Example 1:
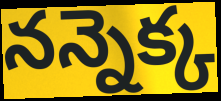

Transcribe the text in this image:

నన్నెక్క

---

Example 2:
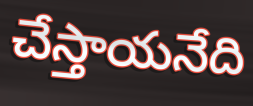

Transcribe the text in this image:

చేస్తాయనేది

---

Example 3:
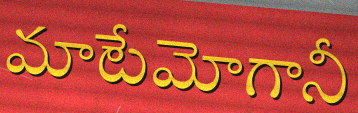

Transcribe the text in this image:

మాటేమోగానీ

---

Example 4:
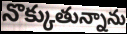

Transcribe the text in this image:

నొక్కుతున్నాను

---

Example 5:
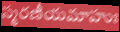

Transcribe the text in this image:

స్మరణీయమాహుః